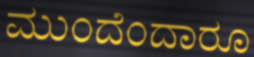
ಮುಂದೆಂದಾರೂ